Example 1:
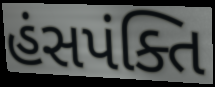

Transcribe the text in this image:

હંસપંક્તિ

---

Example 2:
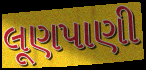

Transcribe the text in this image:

લૂણપાણી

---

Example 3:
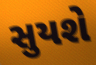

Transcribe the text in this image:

સુયશે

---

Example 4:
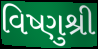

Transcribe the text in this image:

વિષ્ણુશ્રી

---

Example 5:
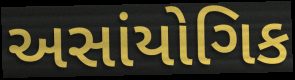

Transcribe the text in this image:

અસાંયોગિક